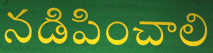
నడిపించాలి